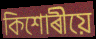
কিশোৰীয়ে